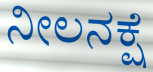
ನೀಲನಕ್ಷೆ